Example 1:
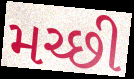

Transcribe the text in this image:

મચ્છી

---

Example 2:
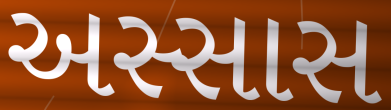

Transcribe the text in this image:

અસ્સાસ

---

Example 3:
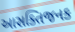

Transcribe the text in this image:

આસક્તિજનક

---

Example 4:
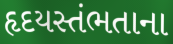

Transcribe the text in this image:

હૃદયસ્તંભતાના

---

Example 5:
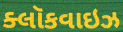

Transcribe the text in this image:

ક્લૉકવાઇઝ